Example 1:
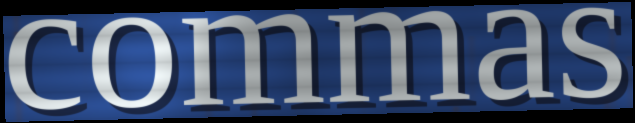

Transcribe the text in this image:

commas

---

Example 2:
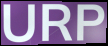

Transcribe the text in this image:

URP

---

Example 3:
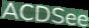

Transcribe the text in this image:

ACDSee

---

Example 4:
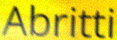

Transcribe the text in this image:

Abritti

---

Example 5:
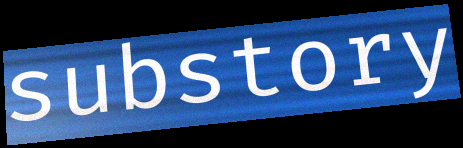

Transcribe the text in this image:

substory